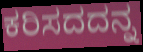
ಕರಿಸದದನ್ನ